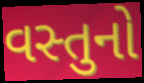
વસ્તુનો